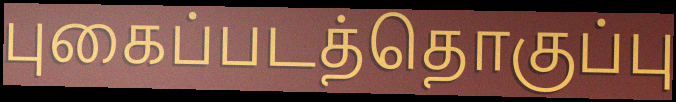
புகைப்படத்தொகுப்பு